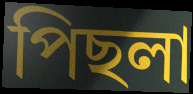
পিছলা